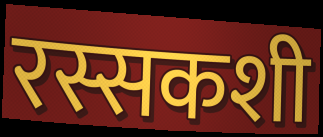
रस्सकशी